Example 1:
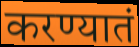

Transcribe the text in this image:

करण्यातं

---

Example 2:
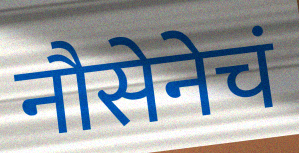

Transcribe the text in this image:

नौसेनेचं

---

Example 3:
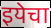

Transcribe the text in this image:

इयेचा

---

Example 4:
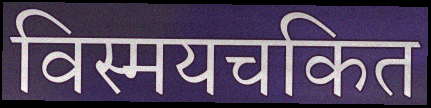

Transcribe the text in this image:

विस्मयचकित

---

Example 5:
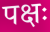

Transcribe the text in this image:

पक्षः